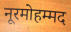
नूरमोहम्मद